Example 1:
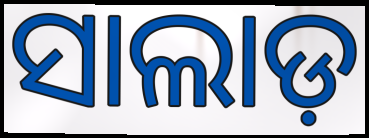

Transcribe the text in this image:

ସାଲାଡ଼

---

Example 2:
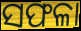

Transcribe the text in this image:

ସଫଳା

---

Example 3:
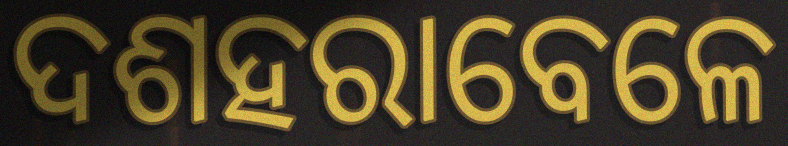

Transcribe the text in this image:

ଦଶହରାବେଳେ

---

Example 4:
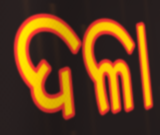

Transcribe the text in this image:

ଦଳା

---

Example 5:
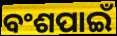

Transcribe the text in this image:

ବଂଶପାଇଁ